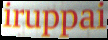
iruppai